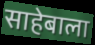
साहेबाला